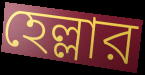
হেল্লার